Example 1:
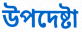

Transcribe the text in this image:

উপদেষ্টা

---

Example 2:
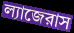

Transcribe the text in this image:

ল্যাজেরাস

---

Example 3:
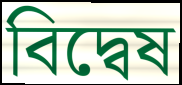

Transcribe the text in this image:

বিদ্বেষ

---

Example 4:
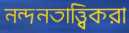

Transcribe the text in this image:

নন্দনতাত্ত্বিকরা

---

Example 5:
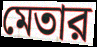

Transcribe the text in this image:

মেতার